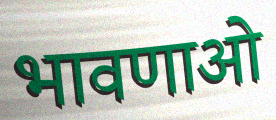
भावणाओ